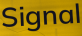
Signal